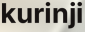
kurinji